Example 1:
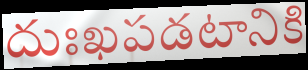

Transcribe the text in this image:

దుఃఖపడటానికి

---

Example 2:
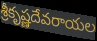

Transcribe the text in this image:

శ్రీకృష్ణదేవరాయల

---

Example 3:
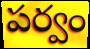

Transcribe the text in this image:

పర్వం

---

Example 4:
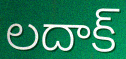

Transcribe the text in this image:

లదాక్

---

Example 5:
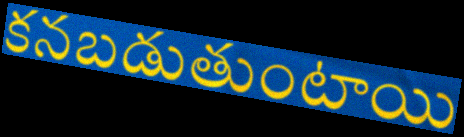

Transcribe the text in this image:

కనబడుతుంటాయి